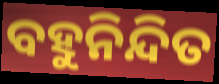
ବହୁନିନ୍ଦିତ